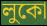
লুকো